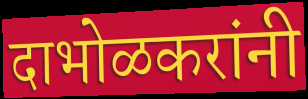
दाभोळकरांनी